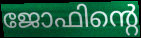
ജോഫിന്റെ